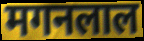
मगनलाल